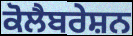
ਕੋਲੈਬਰੇਸ਼ਨ